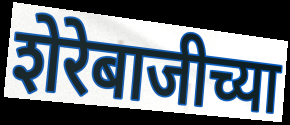
शेरेबाजीच्या